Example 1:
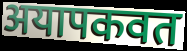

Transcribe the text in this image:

अयापकवत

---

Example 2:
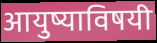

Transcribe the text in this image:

आयुष्याविषयी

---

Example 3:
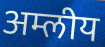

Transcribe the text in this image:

अम्‍लीय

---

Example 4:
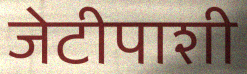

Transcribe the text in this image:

जेटीपाशी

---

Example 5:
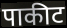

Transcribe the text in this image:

पाकीट